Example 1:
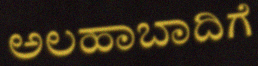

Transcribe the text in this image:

ಅಲಹಾಬಾದಿಗೆ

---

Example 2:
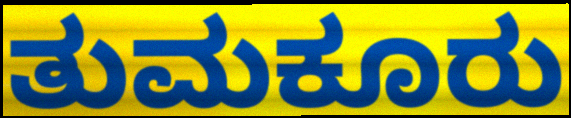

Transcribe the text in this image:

ತುಮಕೂರು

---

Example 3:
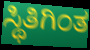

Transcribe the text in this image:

ಸ್ಥಿತಿಗಿಂತ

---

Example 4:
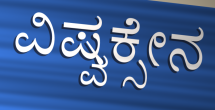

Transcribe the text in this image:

ವಿಷ್ವಕ್ಸೇನ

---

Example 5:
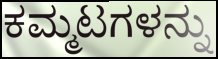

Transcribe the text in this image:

ಕಮ್ಮಟಗಳನ್ನು